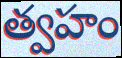
త్వహం